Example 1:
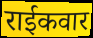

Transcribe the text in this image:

राईकवार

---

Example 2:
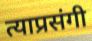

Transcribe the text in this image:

त्याप्रसंगी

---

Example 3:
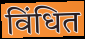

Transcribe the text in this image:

विंधित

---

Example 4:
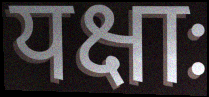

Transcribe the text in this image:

यक्षाः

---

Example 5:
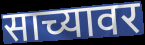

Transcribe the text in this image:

साच्यावर